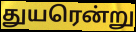
துயரென்று